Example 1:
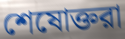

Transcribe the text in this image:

শেষোক্তরা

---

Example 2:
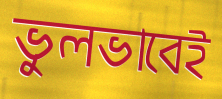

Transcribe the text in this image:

ভুলভাবেই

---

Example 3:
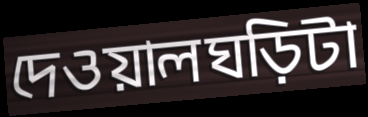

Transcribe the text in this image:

দেওয়ালঘড়িটা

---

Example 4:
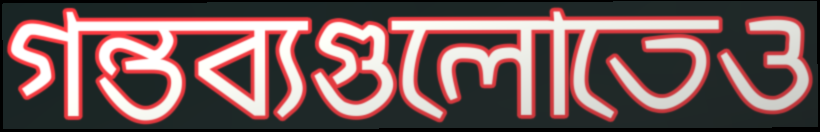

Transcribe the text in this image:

গন্তব্যগুলোতেও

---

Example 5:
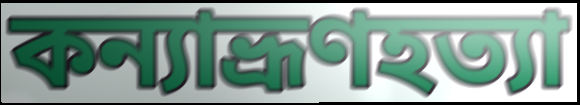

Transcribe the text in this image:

কন্যাভ্রূণহত্যা